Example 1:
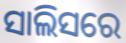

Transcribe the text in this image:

ସାଲିସରେ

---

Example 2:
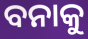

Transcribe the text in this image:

ବନାକୁ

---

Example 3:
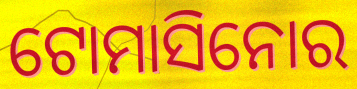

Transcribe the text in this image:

ଟୋମାସିନୋର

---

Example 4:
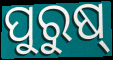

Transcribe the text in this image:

ପୁରୁଷ୍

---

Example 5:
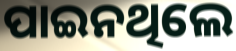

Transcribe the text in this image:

ପାଇନଥିଲେ